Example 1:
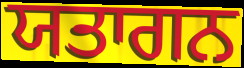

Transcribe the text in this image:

ਯਤਾਗਨ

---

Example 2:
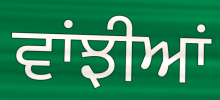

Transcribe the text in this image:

ਵਾਂਝੀਆਂ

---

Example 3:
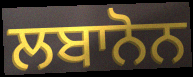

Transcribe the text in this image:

ਲਬਾਨੋਨ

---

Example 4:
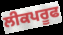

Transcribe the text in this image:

ਲੀਕਪਰੂਫ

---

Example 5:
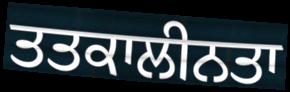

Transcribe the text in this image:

ਤਤਕਾਲੀਨਤਾ